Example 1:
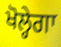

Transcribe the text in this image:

ਖੋਲ੍ਹੇਗਾ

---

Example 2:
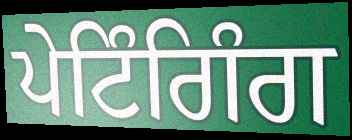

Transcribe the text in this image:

ਪੇਟਿੰਗਿੰਗ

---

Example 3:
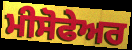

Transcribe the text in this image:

ਮੀਸੋਫੇਅਰ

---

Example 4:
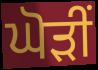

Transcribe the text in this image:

ਘੋੜੀਂ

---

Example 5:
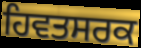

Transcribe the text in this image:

ਹਿਵਤਸਰਕ